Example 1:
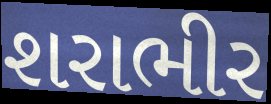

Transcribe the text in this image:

શરાભીર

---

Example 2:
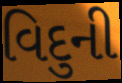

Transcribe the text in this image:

વિદુની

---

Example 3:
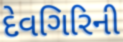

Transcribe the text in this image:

દેવગિરિની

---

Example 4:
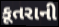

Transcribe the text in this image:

કૂતરાની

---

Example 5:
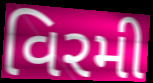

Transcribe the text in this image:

વિરમી